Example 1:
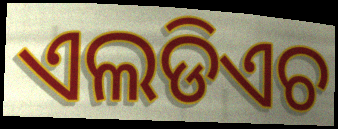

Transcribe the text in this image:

ଏଲଡିଏଚ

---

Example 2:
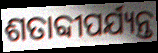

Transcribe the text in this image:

ଶତାବ୍ଦୀପର୍ଯ୍ୟନ୍ତ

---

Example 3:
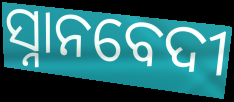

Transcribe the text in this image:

ସ୍ନାନବେଦୀ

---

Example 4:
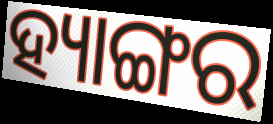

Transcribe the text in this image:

ହ୍ୟାଙ୍ଗର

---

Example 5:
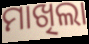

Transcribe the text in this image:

ମାଖିଲା